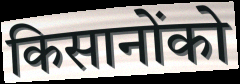
किसानोंको